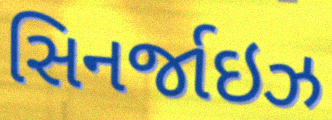
સિનર્જાઇઝ